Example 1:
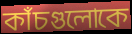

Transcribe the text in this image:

কাঁচগুলোকে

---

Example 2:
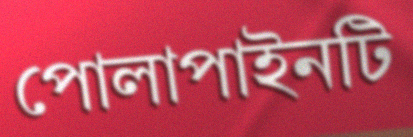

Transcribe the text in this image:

পোলাপাইনটি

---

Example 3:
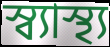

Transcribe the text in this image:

স্ব্যাস্থ্য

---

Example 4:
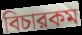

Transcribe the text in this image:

বিচারকম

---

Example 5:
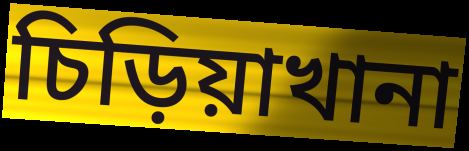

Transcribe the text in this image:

চিড়িয়াখানা